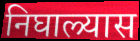
निघाल्यास